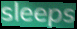
sleeps